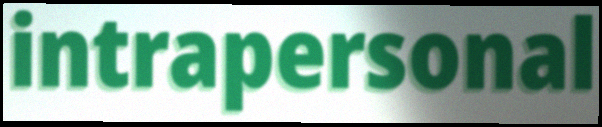
intrapersonal